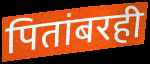
पितांबरही